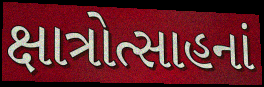
ક્ષાત્રોત્સાહનાં